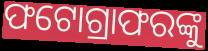
ଫଟୋଗ୍ରାଫରଙ୍କୁ